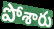
పోశారు